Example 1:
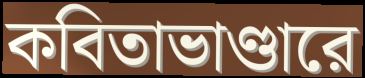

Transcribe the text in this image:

কবিতাভাণ্ডারে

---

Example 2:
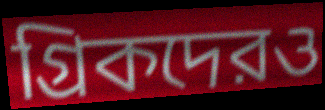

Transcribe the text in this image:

গ্রিকদেরও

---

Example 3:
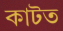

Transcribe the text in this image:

কাটত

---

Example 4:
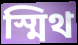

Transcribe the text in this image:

স্মিথ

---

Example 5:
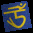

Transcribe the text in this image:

ঊঁ